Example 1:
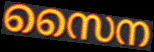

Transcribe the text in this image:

സൈന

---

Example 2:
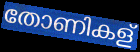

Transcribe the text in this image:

തോണികള്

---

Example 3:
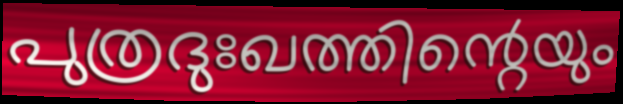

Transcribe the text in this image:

പുത്രദുഃഖത്തിന്റെയും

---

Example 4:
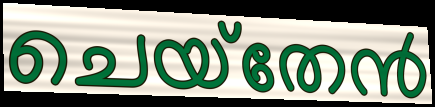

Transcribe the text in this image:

ചെയ്‌തേൻ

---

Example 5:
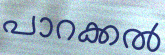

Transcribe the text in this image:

പാറക്കൽ